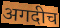
अगदीच